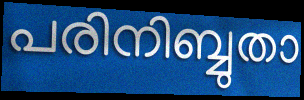
പരിനിബ്ബുതാ